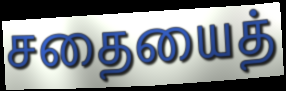
சதையைத்